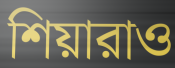
শিয়ারাও